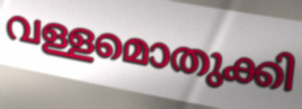
വള്ളമൊതുക്കി